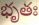
భృతః